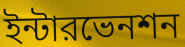
ইন্টারভেনশন